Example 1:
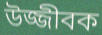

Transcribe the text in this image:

উজ্জীবক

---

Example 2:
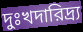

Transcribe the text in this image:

দুঃখদারিদ্র্য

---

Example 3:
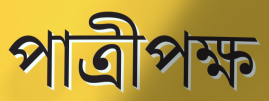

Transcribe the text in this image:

পাত্রীপক্ষ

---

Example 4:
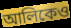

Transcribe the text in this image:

আলিকেও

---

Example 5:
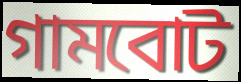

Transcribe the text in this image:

গামবোট